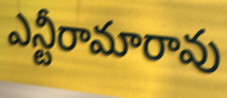
ఎన్టీరామారావు